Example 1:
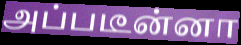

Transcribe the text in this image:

அப்படீன்னா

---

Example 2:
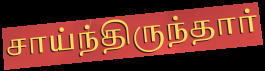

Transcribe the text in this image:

சாய்ந்திருந்தார்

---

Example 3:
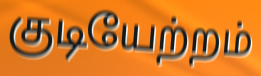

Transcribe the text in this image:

குடியேற்றம்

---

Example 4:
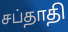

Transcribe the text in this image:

சப்தாதி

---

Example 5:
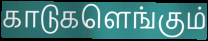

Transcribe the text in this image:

காடுகளெங்கும்